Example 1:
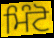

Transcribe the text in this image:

ਮਿੰਟੋ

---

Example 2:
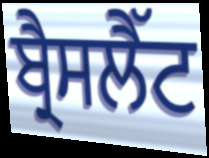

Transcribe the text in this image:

ਬ੍ਰੈਸਲੈੱਟ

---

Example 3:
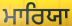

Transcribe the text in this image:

ਮਾਰਿਯਾ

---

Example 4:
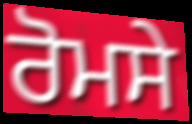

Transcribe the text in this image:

ਰੋਮਸੇ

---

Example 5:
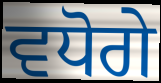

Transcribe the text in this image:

ਵਧੋਗੇ